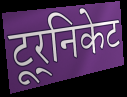
टूर्निकेट